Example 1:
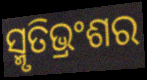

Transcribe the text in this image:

ସ୍ମୃତିଭ୍ରଂଶର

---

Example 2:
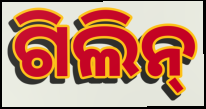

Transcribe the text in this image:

ଗିଲିନ୍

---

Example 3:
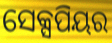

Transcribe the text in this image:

ସେକ୍ସପିୟର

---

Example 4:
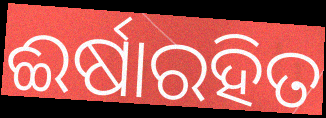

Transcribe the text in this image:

ଈର୍ଷାରହିତ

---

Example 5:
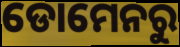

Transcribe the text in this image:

ଡୋମେନରୁ